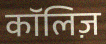
कॉलिज़